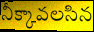
నీక్కావలసిన